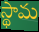
స్థామ